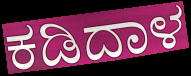
ಕಡಿದಾಳ